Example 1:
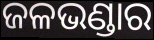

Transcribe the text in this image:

ଜଳଭଣ୍ଡାର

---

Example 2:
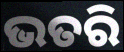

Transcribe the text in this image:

ଭତରି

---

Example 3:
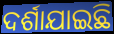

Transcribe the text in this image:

ଦର୍ଶାଯାଇଛି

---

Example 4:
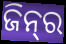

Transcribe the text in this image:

ଜିନ୍‍ର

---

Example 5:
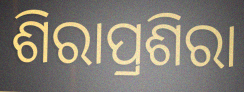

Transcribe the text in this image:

ଶିରାପ୍ରଶିରା